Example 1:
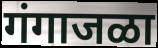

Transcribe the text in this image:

गंगाजळा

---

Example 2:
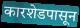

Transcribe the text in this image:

कारशेडपासून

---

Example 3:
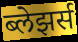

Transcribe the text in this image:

ब्लेझर्स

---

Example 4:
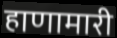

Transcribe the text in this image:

हाणामारी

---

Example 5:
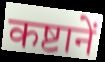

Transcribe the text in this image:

कष्टानें